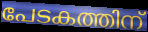
പേടകത്തിന്